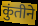
कुंतीने